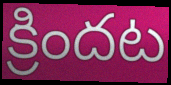
క్రిందట